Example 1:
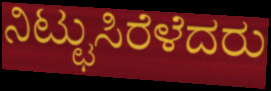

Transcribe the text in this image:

ನಿಟ್ಟುಸಿರೆಳೆದರು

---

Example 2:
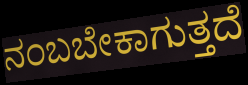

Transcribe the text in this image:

ನಂಬಬೇಕಾಗುತ್ತದೆ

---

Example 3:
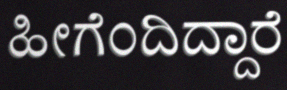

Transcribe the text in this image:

ಹೀಗೆಂದಿದ್ದಾರೆ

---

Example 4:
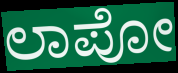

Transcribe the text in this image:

ಲಾಪೋ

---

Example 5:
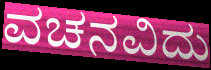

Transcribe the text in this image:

ವಚನವಿದು